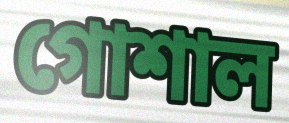
গোশাল